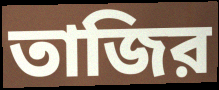
তাজির